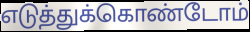
எடுத்துக்கொண்டோம்